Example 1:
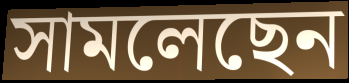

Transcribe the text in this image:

সামলেছেন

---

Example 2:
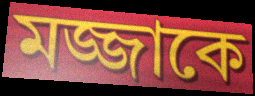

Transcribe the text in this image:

মজ্জাকে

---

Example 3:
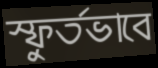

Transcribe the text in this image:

স্ফুর্তভাবে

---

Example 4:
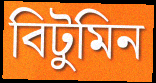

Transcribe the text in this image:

বিটুমিন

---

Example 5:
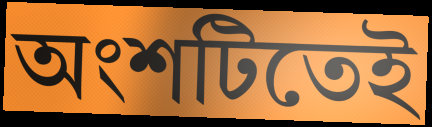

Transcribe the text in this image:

অংশটিতেই